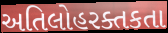
અતિલોહરક્તકતા